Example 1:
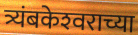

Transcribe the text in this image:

त्र्यंबकेश्‍वराच्या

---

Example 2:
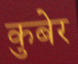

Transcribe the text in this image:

कुबेर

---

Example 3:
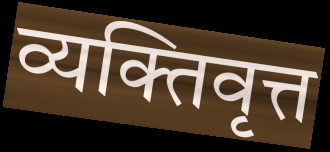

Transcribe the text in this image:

व्यक्तिवृत्त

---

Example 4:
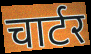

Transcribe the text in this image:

चार्टर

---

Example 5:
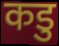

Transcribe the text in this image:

कडु